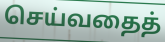
செய்வதைத்